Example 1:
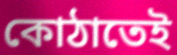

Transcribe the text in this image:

কোঠাতেই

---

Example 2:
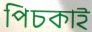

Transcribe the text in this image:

পিচকাই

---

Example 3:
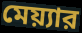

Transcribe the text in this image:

মেয়্যার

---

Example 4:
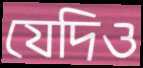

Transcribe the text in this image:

যেদিও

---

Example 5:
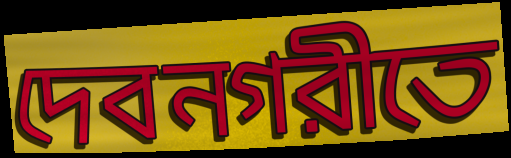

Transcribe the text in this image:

দেবনগরীতে